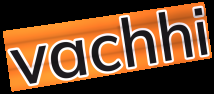
vachhi